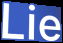
Lie